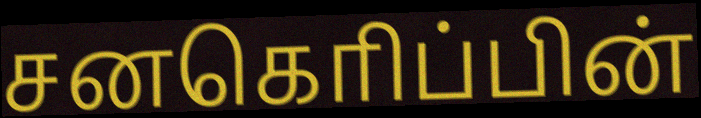
சனகெரிப்பின்